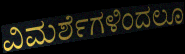
ವಿಮರ್ಶೆಗಳಿಂದಲೂ